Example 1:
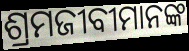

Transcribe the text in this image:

ଶ୍ରମଜୀବୀମାନଙ୍କ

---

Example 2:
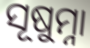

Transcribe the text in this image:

ସୂଷୁମ୍ନା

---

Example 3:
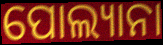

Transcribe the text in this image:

ପୋଲ୍ୟାନା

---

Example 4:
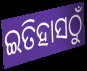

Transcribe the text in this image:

ଇତିହାସଠୁଁ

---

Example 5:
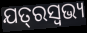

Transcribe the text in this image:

ଯତ୍‌ରସ୍ଵଭ୍ୟ